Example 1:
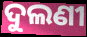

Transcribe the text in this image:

ଦୁଲଣୀ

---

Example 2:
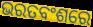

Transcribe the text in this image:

ଭରତବଂଶରେ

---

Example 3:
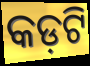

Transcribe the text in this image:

କଡ଼ଟି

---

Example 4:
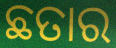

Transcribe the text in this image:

ଛତାର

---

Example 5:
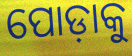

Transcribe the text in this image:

ପୋଡ଼ାକୁ